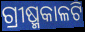
ଗ୍ରୀଷ୍ମକାଳଟି